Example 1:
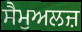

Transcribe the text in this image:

ਸੈਮੁਅਲਜ਼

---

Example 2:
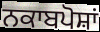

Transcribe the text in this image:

ਨਕਾਬਪੋਸ਼ਾਂ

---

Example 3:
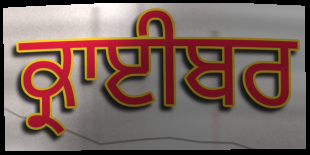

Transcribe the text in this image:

ਕ੍ਰਾਈਬਰ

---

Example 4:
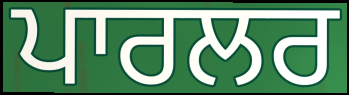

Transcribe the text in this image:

ਪਾਰਲਰ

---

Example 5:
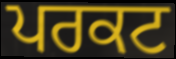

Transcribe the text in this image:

ਪਰਕਟ